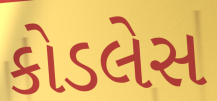
કોડલેસ